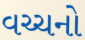
વચ્ચનો